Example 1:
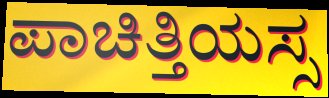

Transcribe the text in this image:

ಪಾಚಿತ್ತಿಯಸ್ಸ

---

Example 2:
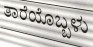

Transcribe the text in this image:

ತಾರೆಯೊಬ್ಬಳು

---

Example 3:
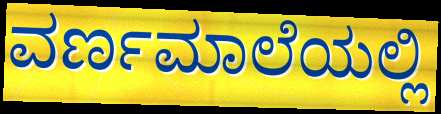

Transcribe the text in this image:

ವರ್ಣಮಾಲೆಯಲ್ಲಿ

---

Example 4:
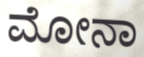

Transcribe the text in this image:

ಮೋನಾ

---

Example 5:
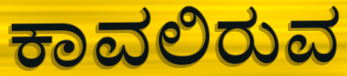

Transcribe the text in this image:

ಕಾವಲಿರುವ